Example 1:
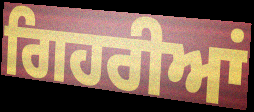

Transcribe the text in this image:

ਗਿਹਰੀਆਂ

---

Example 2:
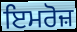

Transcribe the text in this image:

ਇਮਰੋਜ਼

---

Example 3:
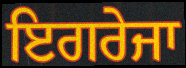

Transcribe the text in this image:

ਇਗਰੇਜਾ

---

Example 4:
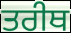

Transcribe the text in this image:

ਤਰੀਥ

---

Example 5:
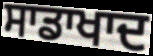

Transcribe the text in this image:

ਸਾਡਾਖਾਦ